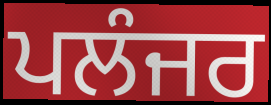
ਪਲੰਜਰ